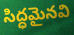
సిద్ధమైనవి